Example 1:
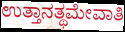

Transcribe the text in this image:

ಉತ್ತಾನತ್ಥಮೇವಾತಿ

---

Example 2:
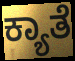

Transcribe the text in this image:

ಕ್ಯಾತೆ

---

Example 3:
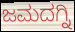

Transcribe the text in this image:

ಜಮದಗ್ನಿ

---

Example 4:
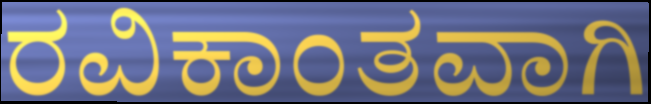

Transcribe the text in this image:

ರವಿಕಾಂತವಾಗಿ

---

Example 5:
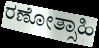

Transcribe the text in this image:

ರಣೋತ್ಸಾಹಿ